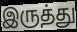
இருத்து